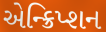
એન્ક્રિપ્શન